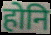
होनि